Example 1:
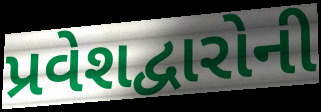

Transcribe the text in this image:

પ્રવેશદ્વારોની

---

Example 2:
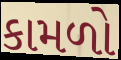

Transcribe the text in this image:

કામળો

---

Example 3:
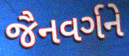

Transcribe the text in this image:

જૈનવર્ગને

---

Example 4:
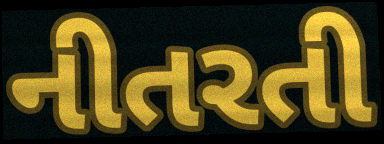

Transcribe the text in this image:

નીતરતી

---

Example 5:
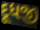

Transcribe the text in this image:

દૂધજી